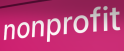
nonprofit